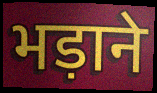
भड़ाने